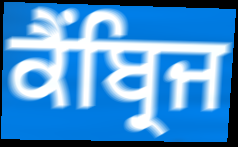
ਕੈਂਬ੍ਰਿਜ